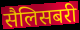
सैलिसबरी